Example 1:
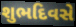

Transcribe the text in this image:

શુભદિવસે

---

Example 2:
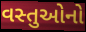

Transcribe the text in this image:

વસ્તુઓનો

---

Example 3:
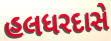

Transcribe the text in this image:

હલધરદાસે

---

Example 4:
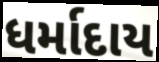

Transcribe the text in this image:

ધર્માદાય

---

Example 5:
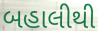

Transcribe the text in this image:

બહાલીથી